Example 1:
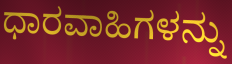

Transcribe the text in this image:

ಧಾರವಾಹಿಗಳನ್ನು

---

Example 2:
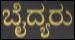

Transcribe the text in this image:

ಬೈದ್ಯರು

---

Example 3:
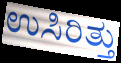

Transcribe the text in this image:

ಉಸಿರಿತ್ತು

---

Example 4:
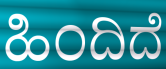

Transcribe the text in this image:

ಹಿಂದಿದೆ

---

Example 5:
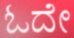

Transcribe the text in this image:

ಓದೇ